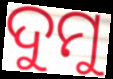
ଦୁମୁ